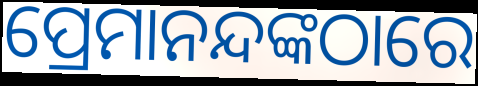
ପ୍ରେମାନନ୍ଦଙ୍କଠାରେ